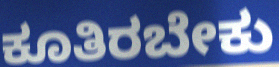
ಕೂತಿರಬೇಕು